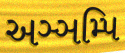
અઞ્ઞમ્પિ